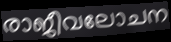
രാജീവലോചന